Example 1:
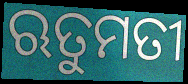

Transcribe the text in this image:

ଋତୁମତୀ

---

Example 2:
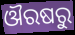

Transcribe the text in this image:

ଔରଷରୁ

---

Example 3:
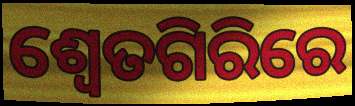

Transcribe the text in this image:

ଶ୍ୱେତଗିରିରେ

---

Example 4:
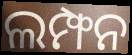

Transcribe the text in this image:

ଲମ୍ଫନ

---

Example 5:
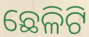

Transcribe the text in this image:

ଛେଳିଟି